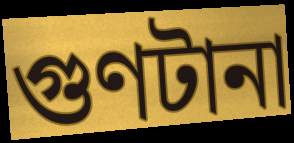
গুণটানা